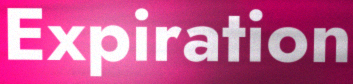
Expiration